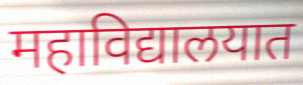
महाविद्यालयात